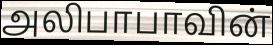
அலிபாபாவின்